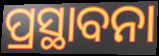
ପ୍ରସ୍ଥାବନା